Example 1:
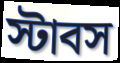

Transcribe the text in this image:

স্টাবস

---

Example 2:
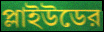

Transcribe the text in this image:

প্লাইউডের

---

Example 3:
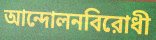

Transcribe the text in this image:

আন্দোলনবিরোধী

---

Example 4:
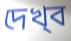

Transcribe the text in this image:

দেখ্‌ব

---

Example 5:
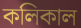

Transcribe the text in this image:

কলিকাল